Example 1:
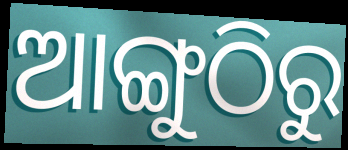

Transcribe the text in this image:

ଆଙ୍ଗୁଠିରୁ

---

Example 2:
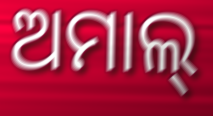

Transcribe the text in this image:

ଅମାଲ୍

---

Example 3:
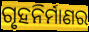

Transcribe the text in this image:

ଗୃହନିର୍ମାଣର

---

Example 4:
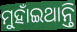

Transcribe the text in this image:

ମୁହାଁଇଥାନ୍ତି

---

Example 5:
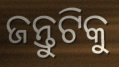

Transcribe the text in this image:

ଜନ୍ତୁଟିକୁ